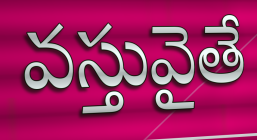
వస్తువైతే